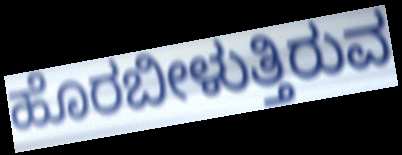
ಹೊರಬೀಳುತ್ತಿರುವ